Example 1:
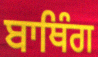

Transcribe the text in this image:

ਬਾਥਿੰਗ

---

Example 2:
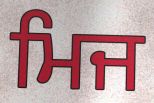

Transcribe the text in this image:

ਮਿਜ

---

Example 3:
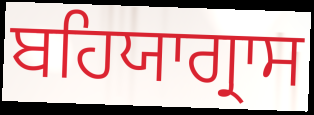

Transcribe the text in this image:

ਬਹਿਯਾਗ੍ਰਾਸ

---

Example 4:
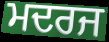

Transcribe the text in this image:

ਮਦਰਜ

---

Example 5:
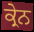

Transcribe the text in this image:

ਕ੍ਰੇਨ